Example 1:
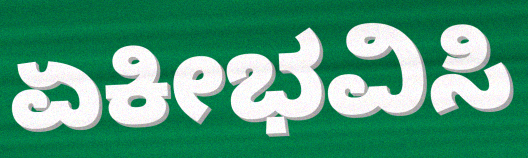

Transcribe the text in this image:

ಏಕೀಭವಿಸಿ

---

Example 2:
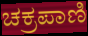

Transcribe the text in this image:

ಚಕ್ರಪಾಣಿ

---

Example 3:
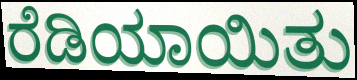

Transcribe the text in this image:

ರೆಡಿಯಾಯಿತು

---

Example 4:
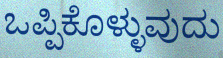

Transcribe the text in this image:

ಒಪ್ಪಿಕೊಳ್ಳುವುದು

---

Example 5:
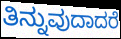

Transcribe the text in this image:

ತಿನ್ನುವುದಾದರೆ